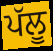
ਪੱਲੂ